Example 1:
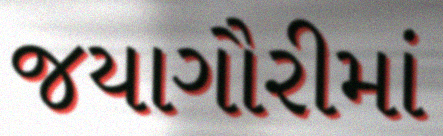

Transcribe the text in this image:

જયાગૌરીમાં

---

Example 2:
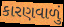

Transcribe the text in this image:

કારણવાળું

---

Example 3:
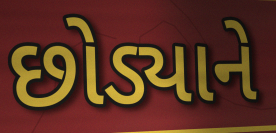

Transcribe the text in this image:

છોડ્યાને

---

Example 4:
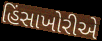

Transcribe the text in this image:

હિંસાખોરીએ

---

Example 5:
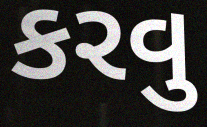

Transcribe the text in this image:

કરવુ